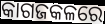
କାଗଜକଳରେ